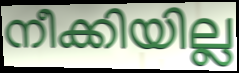
നീക്കിയില്ല